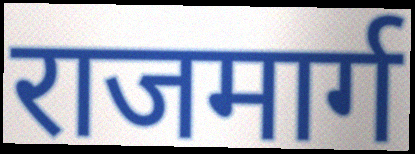
राजमार्ग